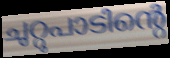
ചുറ്റുപാടിന്റെ